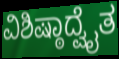
ವಿಶಿಷ್ಠಾದ್ವೈತ